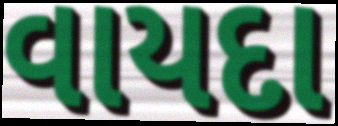
વાયદા